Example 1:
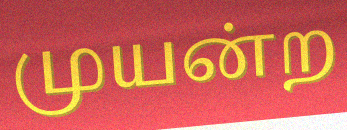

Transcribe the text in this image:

முயன்ற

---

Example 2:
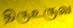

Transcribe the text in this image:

திருஉருவ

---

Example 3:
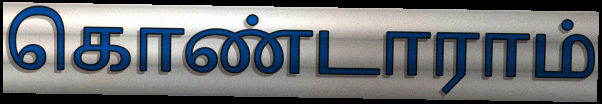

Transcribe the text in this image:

கொண்டாராம்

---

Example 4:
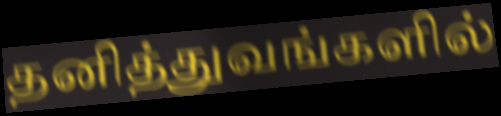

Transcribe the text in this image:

தனித்துவங்களில்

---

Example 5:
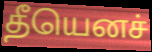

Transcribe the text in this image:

தீயெனச்